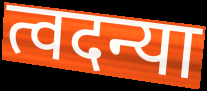
त्वदन्या